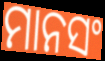
ମାନସଂ